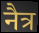
नैत्र